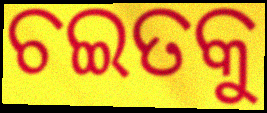
ଚଇତକୁ